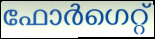
ഫോർഗെറ്റ്